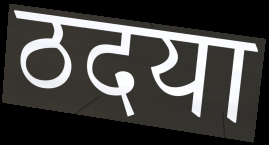
ठदया